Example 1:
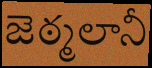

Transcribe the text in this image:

జెఠ్మలానీ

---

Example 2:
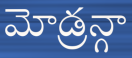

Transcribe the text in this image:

మోడ్రన్గా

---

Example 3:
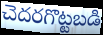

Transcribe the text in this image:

చెదరగొట్టబడి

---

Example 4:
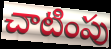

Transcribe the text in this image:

చాటింపు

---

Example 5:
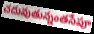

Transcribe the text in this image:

చదువుతున్నంతసేపూ